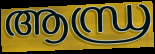
ആന്ധ്ര